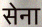
सेना